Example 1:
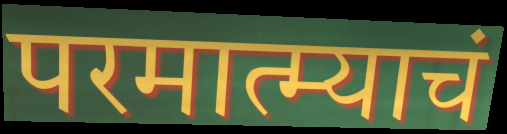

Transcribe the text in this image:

परमात्म्याचं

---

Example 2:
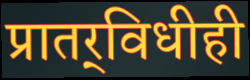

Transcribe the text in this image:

प्रातर्विधीही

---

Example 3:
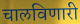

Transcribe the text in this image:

चालविणारी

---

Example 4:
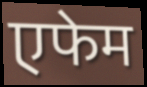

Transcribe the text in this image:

एफेम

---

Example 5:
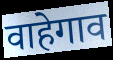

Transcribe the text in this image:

वाहेगाव